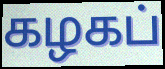
கழகப்